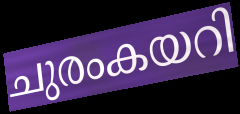
ചുരംകയറി